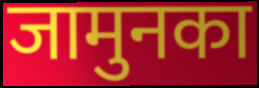
जामुनका